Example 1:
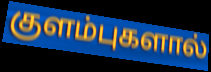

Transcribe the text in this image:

குளம்புகளால்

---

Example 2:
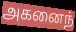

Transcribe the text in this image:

அகனைந்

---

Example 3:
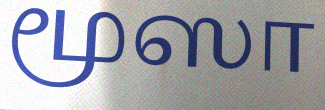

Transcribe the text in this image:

மூஸா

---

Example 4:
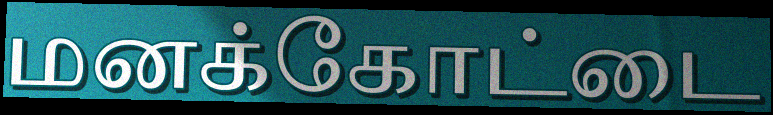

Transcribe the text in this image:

மனக்கோட்டை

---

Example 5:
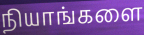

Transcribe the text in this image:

நியாங்களை